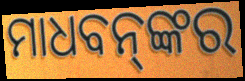
ମାଧବନ୍‌ଙ୍କର